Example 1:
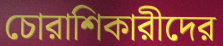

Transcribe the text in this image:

চোরাশিকারীদের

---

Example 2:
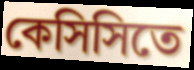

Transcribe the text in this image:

কেসিসিতে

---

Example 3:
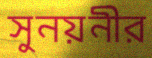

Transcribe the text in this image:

সুনয়নীর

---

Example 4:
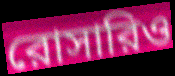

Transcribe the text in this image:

রোসারিও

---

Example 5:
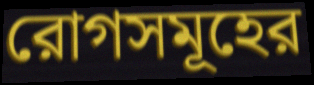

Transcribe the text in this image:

রোগসমূহের